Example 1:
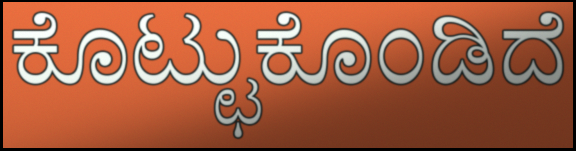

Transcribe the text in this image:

ಕೊಟ್ಟುಕೊಂಡಿದೆ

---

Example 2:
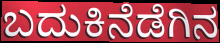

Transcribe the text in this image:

ಬದುಕಿನೆಡೆಗಿನ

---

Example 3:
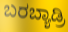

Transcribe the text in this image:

ಬರಬ್ಯಾಡ್ರಿ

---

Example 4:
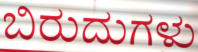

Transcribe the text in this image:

ಬಿರುದುಗಳು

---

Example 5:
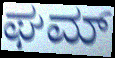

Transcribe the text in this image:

ಘಮ್